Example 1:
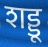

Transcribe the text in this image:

शड्डू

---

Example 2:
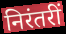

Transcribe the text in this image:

निरंतरीं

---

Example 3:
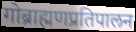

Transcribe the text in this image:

गोब्राह्मणप्रतिपालन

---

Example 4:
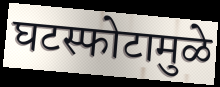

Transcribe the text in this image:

घटस्फोटामुळे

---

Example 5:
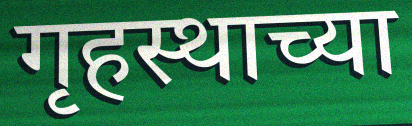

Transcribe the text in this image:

गृहस्थाच्या